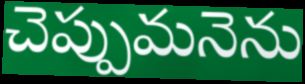
చెప్పుమనెను